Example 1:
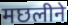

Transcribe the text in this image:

मछलीने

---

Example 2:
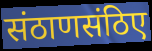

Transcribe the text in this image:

संठाणसंठिए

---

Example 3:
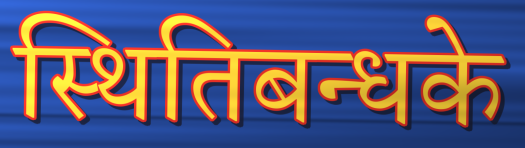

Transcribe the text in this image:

स्थितिबन्धके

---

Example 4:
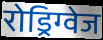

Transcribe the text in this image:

रोड्रिग्वेज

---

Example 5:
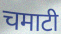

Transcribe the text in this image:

चमाटी